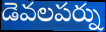
డెవలపర్ను